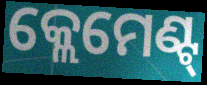
କ୍ଲେମେଣ୍ଟ୍